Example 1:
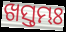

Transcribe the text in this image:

ଖସ୍ତମ୍ଭଃ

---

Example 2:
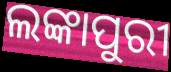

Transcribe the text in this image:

ଲଙ୍କାପୁରୀ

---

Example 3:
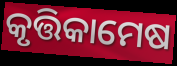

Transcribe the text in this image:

କୃତ୍ତିକାମେଷ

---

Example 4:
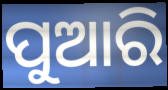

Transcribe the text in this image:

ପୁଆରି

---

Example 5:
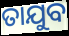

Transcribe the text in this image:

ତାଯୁବ